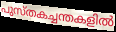
പുസ്തകച്ചന്തകളിൽ